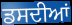
ਡਸਦੀਆਂ